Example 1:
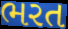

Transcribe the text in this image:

ભરત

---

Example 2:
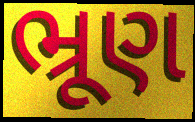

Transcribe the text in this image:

ભ્રૂણ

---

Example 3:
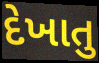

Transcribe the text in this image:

દેખાતુ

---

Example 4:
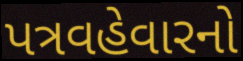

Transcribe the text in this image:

પત્રવહેવારનો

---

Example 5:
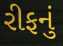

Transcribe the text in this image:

રીફનું